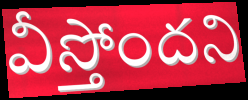
వీస్తోందని